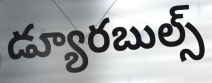
డ్యూరబుల్స్